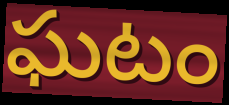
ఘటం